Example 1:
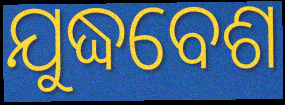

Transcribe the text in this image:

ଯୁଦ୍ଧବେଶ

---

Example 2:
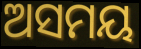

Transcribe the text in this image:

ଅସମୟ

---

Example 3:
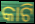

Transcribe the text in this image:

କାଟି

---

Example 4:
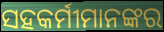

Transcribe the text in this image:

ସହକର୍ମୀମାନଙ୍କର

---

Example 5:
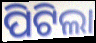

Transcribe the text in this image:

ପିଟିଲା